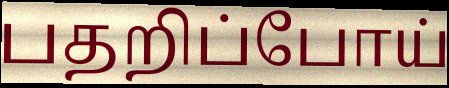
பதறிப்போய்